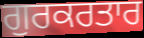
ਗੁਰਕਰਤਾਰ